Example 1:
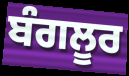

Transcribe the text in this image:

ਬੰਗਲੂਰ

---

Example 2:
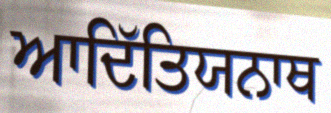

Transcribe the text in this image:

ਆਦਿੱਤਿਯਨਾਥ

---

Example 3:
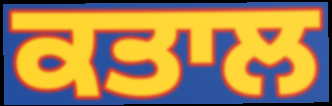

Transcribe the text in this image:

ਕਤਾਲ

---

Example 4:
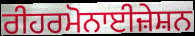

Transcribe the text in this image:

ਰੀਹਰਮੋਨਾਈਜ਼ੇਸ਼ਨ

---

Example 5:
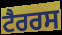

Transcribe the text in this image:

ਟੈਰਰਸ